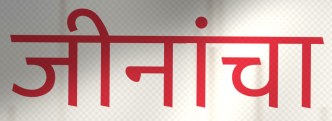
जीनांचा